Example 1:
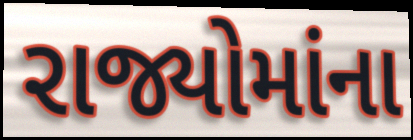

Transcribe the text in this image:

રાજ્યોમાંના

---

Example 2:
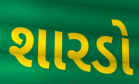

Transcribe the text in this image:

શારડો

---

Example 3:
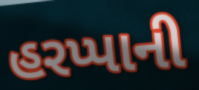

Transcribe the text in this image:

હરપ્પાની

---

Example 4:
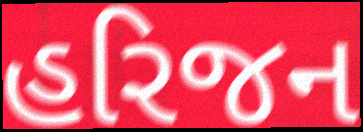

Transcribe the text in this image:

હરિજન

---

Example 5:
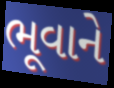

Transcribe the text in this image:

ભૂવાને